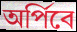
অর্পিবে